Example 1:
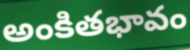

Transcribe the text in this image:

అంకితభావం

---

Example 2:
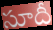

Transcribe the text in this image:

సూదీ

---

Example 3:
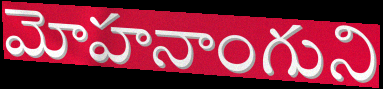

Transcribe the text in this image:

మోహనాంగుని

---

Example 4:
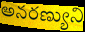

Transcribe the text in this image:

అనరణ్యుని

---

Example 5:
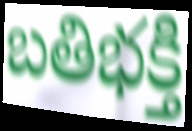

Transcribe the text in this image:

బతిభక్తి